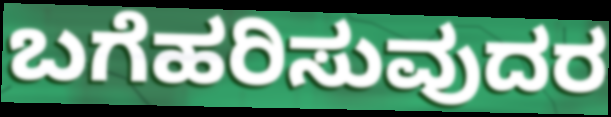
ಬಗೆಹರಿಸುವುದರ